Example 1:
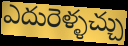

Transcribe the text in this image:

ఎదురెళ్ళచ్చు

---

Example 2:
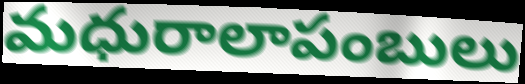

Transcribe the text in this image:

మధురాలాపంబులు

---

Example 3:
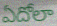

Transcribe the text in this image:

ఏదోలా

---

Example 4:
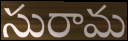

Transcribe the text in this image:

సురామ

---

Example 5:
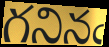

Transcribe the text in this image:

గనినఁ